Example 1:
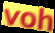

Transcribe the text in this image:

voh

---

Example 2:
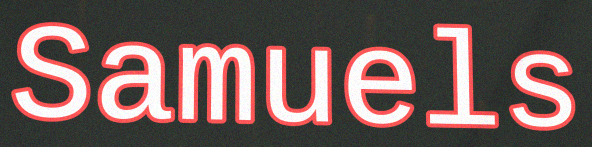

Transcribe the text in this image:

Samuels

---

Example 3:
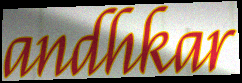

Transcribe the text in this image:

andhkar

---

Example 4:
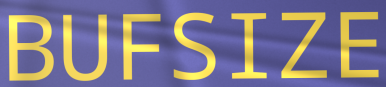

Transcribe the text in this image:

BUFSIZE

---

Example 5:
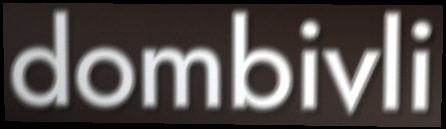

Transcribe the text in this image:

dombivli